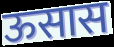
ऊसास